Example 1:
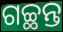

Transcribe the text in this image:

ଗଚ୍ଛନ୍ତ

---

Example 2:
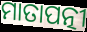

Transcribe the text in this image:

ମାତାପତ୍ନୀ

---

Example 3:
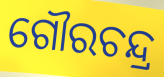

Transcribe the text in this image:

ଗୌରଚନ୍ଦ୍ର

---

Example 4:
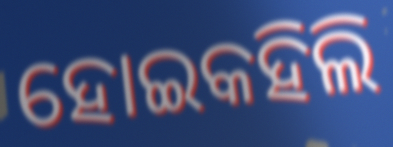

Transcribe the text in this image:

ହୋଇକହିଲି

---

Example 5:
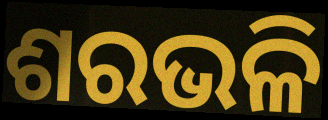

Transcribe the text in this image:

ଶରଭଳି